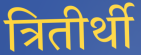
त्रितीर्थी